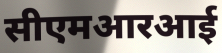
सीएमआरआई